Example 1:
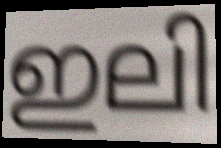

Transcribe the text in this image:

ഇലി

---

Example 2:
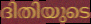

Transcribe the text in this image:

ദിതിയുടെ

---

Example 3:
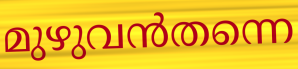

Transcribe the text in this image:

മുഴുവൻതന്നെ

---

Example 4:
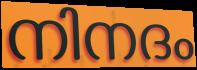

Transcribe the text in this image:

നിനദം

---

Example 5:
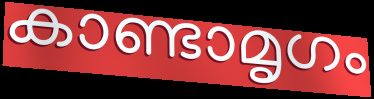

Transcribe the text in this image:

കാണ്ടാമൃഗം